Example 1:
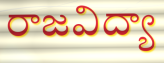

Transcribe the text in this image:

రాజవిద్యా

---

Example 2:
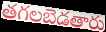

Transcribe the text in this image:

తగలబెడతారు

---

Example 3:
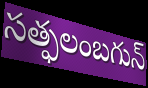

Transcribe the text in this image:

సత్ఫలంబగున్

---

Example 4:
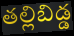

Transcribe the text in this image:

తల్లిబిడ్డ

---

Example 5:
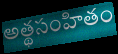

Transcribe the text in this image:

అత్థసంహితం